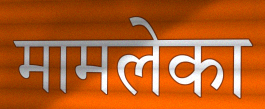
मामलेका